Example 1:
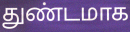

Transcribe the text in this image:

துண்டமாக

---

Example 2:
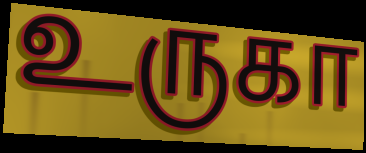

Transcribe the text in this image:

உருகா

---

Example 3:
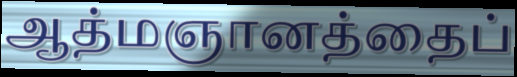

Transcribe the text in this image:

ஆத்மஞானத்தைப்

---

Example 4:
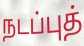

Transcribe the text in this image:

நடப்புத்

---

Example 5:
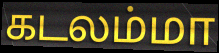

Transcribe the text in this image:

கடலம்மா